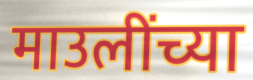
माउलींच्या